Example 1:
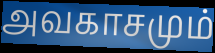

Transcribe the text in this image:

அவகாசமும்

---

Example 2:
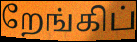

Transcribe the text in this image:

றேங்கிப்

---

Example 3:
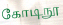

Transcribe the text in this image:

கோடிநூ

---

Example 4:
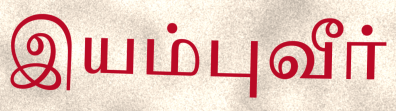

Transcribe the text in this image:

இயம்புவீர்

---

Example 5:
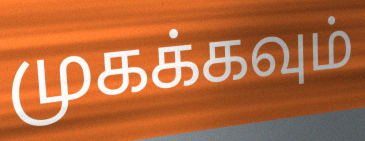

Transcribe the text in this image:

முகக்கவும்